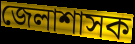
জেলাশাসক